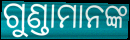
ଗୁଣ୍ଡାମାନଙ୍କ